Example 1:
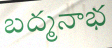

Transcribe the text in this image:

బద్మనాభ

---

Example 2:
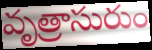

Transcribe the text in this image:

వృత్రాసురుం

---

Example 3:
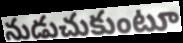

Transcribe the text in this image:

నుడుచుకుంటూ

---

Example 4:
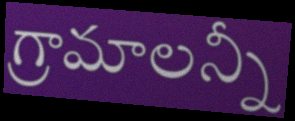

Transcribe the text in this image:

గ్రామాలన్నీ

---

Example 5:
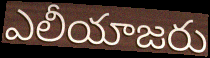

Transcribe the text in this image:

ఎలీయాజరు